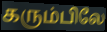
கரும்பிலே